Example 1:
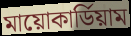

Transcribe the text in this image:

মায়োকার্ডিয়াম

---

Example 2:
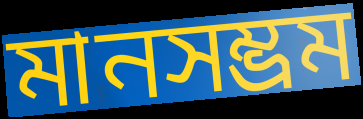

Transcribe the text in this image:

মানসম্ভ্রম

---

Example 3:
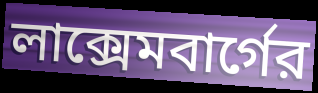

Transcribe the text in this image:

লাক্সেমবার্গের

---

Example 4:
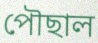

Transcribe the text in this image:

পৌছাল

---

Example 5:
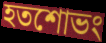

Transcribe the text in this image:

হতশোভং